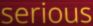
serious